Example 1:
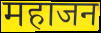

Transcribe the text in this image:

महाजन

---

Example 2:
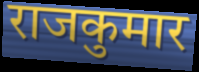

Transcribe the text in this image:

राजकुमार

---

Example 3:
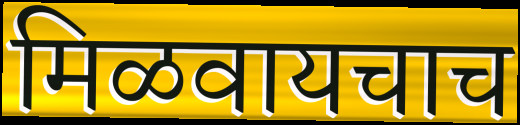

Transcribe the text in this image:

मिळवायचाच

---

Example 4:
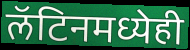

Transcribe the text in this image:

लॅटिनमध्येही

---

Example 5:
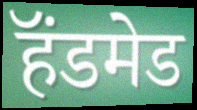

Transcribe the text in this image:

हॅंडमेड